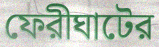
ফেরীঘাটের